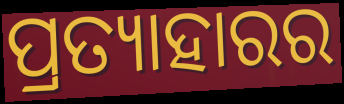
ପ୍ରତ୍ୟାହାରର